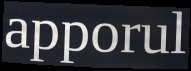
apporul